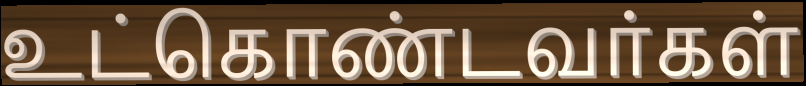
உட்கொண்டவர்கள்